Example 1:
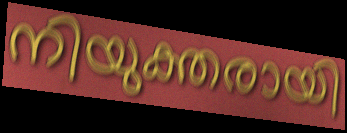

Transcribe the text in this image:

നിയുക്തരായി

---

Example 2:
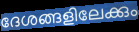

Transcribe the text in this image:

ദേശങ്ങളിലേക്കും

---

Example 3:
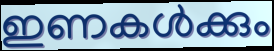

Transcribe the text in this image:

ഇണകൾക്കും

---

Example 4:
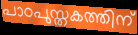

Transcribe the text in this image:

പാഠപുസ്തകത്തിന്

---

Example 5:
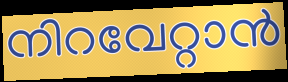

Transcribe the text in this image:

നിറവേറ്റാൻ